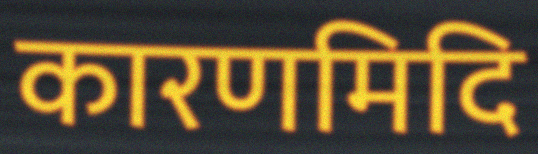
कारणमिदि